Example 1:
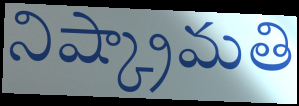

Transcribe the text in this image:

నిష్క్రామతి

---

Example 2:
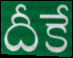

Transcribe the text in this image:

దీకే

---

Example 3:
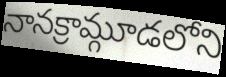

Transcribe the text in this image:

నానక్రామ్గూడలోని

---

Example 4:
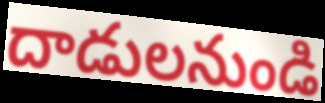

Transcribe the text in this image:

దాడులనుండి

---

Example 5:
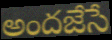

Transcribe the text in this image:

అందజేసే